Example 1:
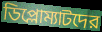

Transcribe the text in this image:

ডিপ্লোম্যাটদের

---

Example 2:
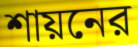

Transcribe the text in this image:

শায়নের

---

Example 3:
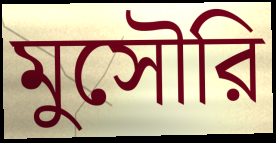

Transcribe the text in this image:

মুসৌরি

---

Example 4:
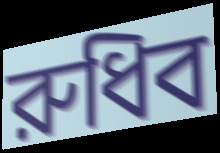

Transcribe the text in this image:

রুধিব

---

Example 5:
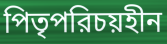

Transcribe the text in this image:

পিতৃপরিচয়হীন